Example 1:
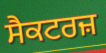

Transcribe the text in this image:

ਸੈਕਟਰਜ਼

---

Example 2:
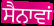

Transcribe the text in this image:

ਸੈਨਾਵਾਂ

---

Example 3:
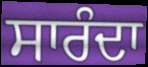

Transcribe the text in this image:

ਸਾਰੰਦਾ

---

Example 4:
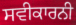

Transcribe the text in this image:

ਸਵੀਕਾਰਨੀ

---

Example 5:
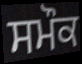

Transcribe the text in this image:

ਸਮੌਕ